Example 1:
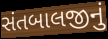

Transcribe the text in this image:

સંતબાલજીનું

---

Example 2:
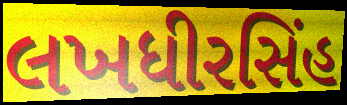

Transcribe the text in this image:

લખધીરસિંહ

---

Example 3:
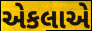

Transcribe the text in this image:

એકલાએ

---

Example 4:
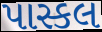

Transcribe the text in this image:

પાસ્કલ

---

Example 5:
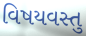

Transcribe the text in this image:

વિષયવસ્તુ